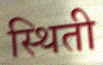
स्थिती